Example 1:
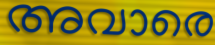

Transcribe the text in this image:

അവാരെ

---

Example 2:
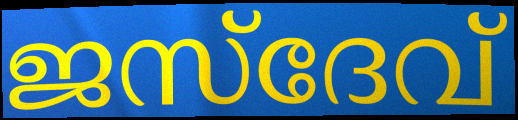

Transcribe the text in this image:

ജസ്ദേവ്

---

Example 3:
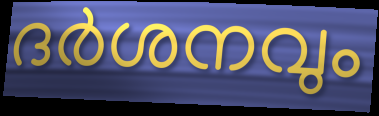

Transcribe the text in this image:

ദർശനവും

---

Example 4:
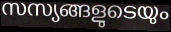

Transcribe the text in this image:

സസ്യങ്ങളുടെയും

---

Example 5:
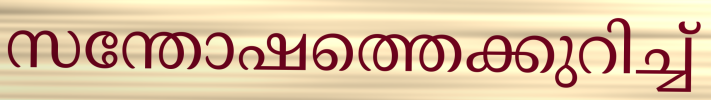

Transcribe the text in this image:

സന്തോഷത്തെക്കുറിച്ച്